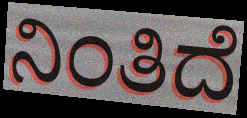
ನಿಂತಿದೆ